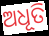
ଅଧୂତି